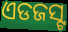
ଏଡଜସ୍ଟ